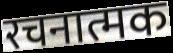
रचनात्मक